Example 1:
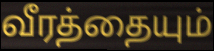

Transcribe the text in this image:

வீரத்தையும்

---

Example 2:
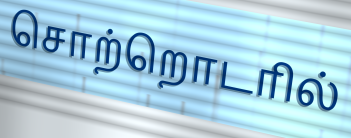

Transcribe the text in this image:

சொற்றொடரில்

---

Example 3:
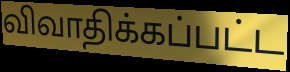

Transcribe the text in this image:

விவாதிக்கப்பட்ட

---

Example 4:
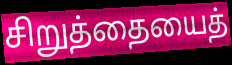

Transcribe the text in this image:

சிறுத்தையைத்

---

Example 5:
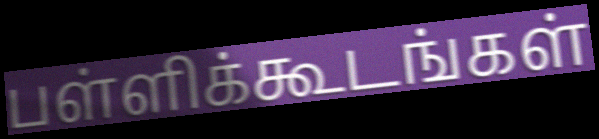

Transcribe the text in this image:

பள்ளிக்கூடங்கள்